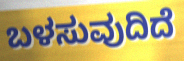
ಬಳಸುವುದಿದೆ